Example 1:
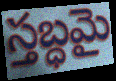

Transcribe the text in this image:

స్తబ్ధమై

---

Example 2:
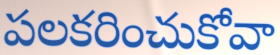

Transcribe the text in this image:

పలకరించుకోవా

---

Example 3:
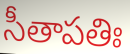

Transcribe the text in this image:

సీతాపతిః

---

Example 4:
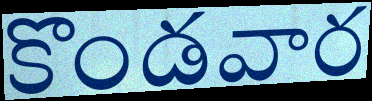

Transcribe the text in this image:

కొండవార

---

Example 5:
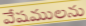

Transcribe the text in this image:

వేషములను